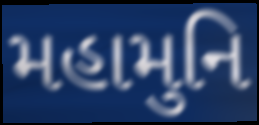
મહામુનિ